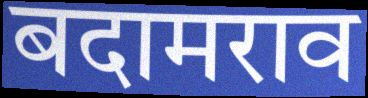
बदामराव